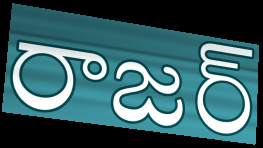
రాజర్